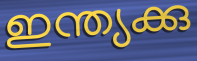
ഇന്ത്യക്കു